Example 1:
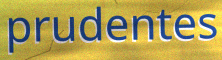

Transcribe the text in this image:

prudentes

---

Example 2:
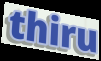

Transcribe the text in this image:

thiru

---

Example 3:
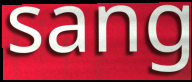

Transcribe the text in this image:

sang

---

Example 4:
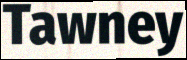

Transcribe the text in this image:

Tawney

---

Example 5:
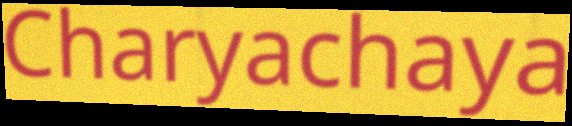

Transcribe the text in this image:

Charyachaya